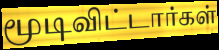
மூடிவிட்டார்கள்